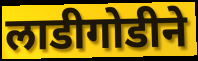
लाडीगोडीने